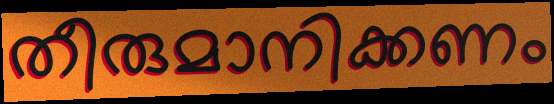
തീരുമാനിക്കണം